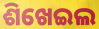
ଶିଖେଇଲ